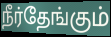
நீர்தேங்கும்